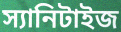
স্যানিটাইজ